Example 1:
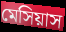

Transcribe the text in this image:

মেসিয়াস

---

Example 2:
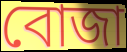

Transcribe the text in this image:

বোজা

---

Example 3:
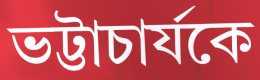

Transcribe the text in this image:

ভট্টাচার্যকে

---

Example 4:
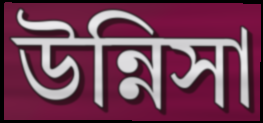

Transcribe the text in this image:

উন্নিসা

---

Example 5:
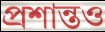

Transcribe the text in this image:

প্রশান্তও